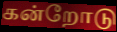
கன்றோடு